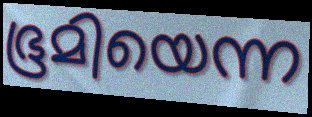
ഭൂമിയെന്ന